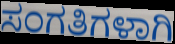
ಸಂಗತಿಗಳಾಗಿ